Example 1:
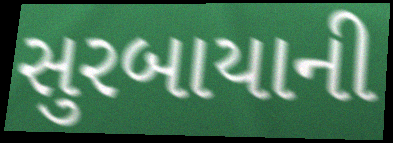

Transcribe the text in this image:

સુરબાયાની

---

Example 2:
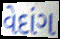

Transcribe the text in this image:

વેદાંગ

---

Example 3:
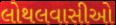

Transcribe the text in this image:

લોથલવાસીઓ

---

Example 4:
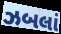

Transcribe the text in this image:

ઝબલાં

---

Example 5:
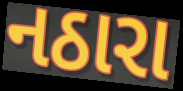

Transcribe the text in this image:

નઠારા